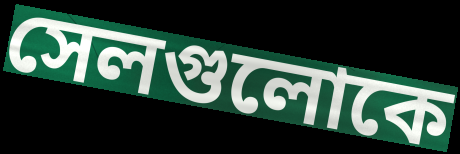
সেলগুলোকে